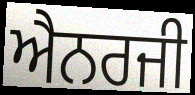
ਐਨਰਜੀ